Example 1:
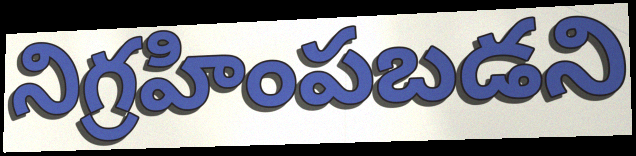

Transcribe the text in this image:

నిగ్రహింపబడని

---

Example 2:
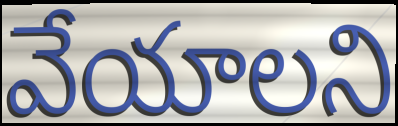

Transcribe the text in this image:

వేయాలని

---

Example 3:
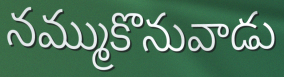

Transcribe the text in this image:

నమ్ముకొనువాడు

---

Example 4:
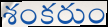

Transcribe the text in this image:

శంకరుం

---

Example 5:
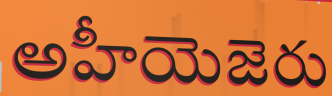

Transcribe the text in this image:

అహీయెజెరు